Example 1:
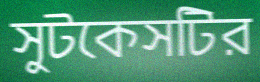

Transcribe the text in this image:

সুটকেসটির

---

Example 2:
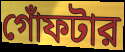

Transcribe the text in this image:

গোঁফটার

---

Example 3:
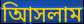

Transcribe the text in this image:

আিসলাম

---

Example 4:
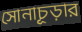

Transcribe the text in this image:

সোনাচূড়ার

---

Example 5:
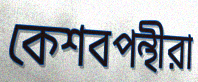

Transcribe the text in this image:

কেশবপন্থীরা